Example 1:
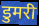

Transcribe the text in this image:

डुमरी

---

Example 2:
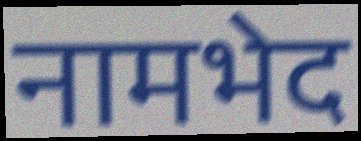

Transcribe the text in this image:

नामभेद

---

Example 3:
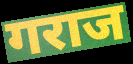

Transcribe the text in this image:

गराज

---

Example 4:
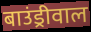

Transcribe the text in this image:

बाउंड्रीवाल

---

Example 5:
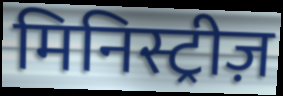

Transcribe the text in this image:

मिनिस्ट्रीज़